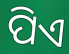
ପିଏ